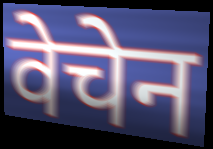
वेचेन